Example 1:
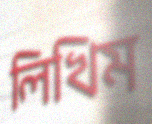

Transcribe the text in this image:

লিখিম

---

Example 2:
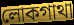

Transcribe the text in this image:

লোকগাথা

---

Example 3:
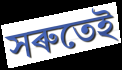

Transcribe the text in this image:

সৰুতেই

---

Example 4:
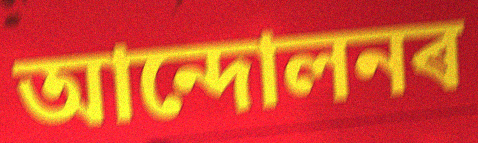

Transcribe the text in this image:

আন্দোলনৰ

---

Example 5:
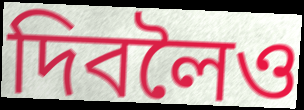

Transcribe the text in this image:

দিবলৈও